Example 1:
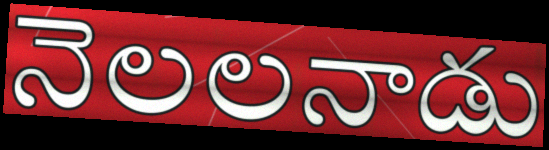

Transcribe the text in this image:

నెలలనాడు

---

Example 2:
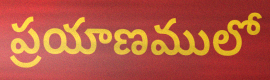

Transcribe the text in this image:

ప్రయాణములో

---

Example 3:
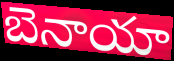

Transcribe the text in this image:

బెనాయా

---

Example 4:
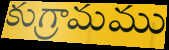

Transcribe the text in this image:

కుగ్రామము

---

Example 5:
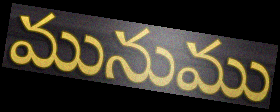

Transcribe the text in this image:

మునుము